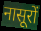
नासूरों